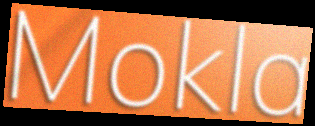
Mokla